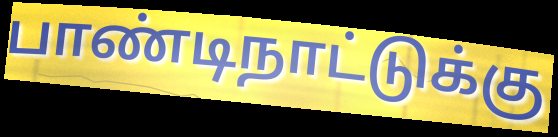
பாண்டிநாட்டுக்கு